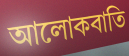
আলোকবাতি